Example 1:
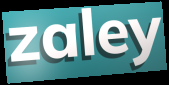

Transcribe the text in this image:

zaley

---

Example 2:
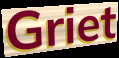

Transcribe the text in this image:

Griet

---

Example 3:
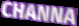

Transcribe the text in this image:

CHANNA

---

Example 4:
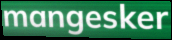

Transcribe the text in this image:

mangesker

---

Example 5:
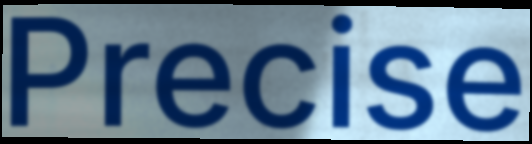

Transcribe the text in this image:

Precise